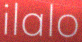
ilalo